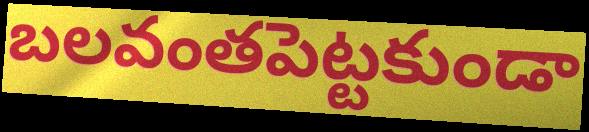
బలవంతపెట్టకుండా